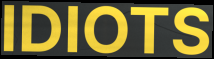
IDIOTS